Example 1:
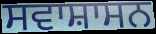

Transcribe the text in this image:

ਸਵਾਸ਼ਾਸਨ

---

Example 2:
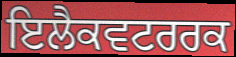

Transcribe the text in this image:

ਇਲੈਕਵਟਰਰਕ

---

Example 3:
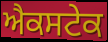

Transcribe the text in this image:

ਐਕਸਟੇਕ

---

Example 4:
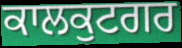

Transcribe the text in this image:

ਕਾਲਕੁਟਗਰ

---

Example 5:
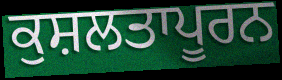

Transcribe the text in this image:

ਕੁਸ਼ਲਤਾਪੂਰਨ